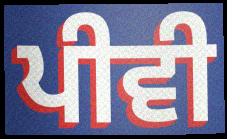
ਪੀਵੀ